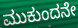
ಮುಕುಂದನೇ